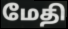
மேதி